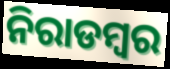
ନିରାଡମ୍ଵର